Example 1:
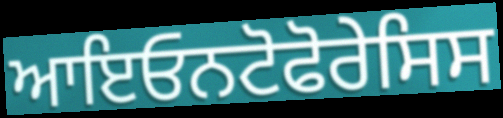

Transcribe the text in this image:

ਆਇਓਨਟੋਫੋਰੇਸਿਸ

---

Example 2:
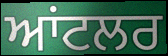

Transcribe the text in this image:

ਆਂਟਲਰ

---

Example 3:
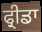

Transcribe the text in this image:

ਫ੍ਰੀਡਾ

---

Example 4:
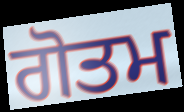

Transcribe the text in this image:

ਗੋਤਮ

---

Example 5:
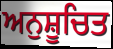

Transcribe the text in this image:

ਅਨੁਸ਼ੂਚਿਤ